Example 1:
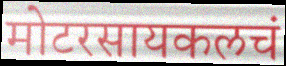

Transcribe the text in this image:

मोटरसायकलचं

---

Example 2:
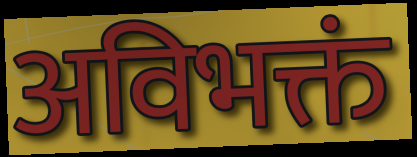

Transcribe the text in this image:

अविभक्तं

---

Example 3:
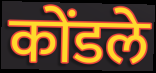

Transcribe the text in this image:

कोंडले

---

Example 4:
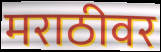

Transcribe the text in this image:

मराठीवर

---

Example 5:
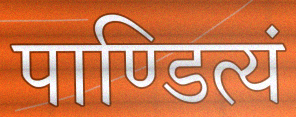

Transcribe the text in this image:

पाण्डित्यं